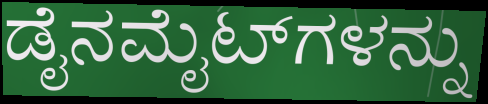
ಡೈನಮೈಟ್‌ಗಳನ್ನು